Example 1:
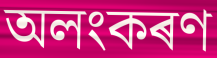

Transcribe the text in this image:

অলংকৰণ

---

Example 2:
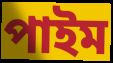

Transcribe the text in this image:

পাইম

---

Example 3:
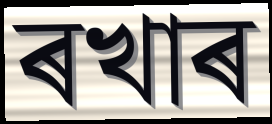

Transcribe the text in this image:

ৰখাৰ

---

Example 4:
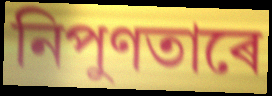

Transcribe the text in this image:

নিপুণতাৰে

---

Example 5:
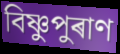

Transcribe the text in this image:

বিষ্ণুপুৰাণ